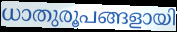
ധാതുരൂപങ്ങളായി